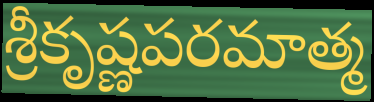
శ్రీకృష్ణపరమాత్మ